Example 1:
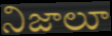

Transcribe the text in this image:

నిజాలూ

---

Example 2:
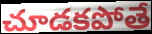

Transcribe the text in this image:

చూడకపోతే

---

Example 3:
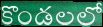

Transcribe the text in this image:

కొండలలో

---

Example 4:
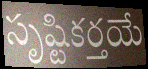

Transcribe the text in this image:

సృష్టికర్తయే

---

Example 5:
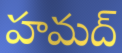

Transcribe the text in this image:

హమద్